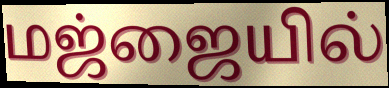
மஜ்ஜையில்